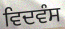
ਵਿਦਵੰਸ